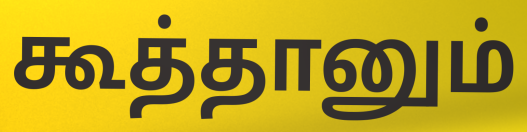
கூத்தானும்